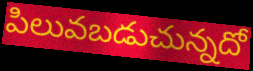
పిలువబడుచున్నదో